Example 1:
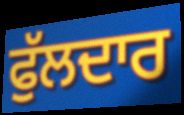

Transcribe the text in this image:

ਫੁੱਲਦਾਰ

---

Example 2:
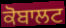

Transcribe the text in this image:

ਕੋਬਾਲਟ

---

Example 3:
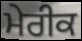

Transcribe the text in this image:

ਮੇਰੀਕ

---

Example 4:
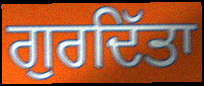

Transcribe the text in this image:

ਗੁਰਦਿੱਤਾ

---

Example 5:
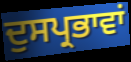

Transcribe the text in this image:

ਦੁਸਪ੍ਰਭਾਵਾਂ